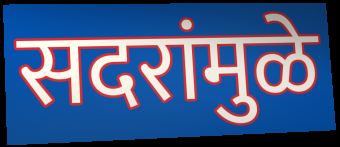
सदरांमुळे